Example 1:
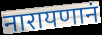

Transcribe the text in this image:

नारायणानं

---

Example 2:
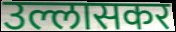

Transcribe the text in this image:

उल्लासकर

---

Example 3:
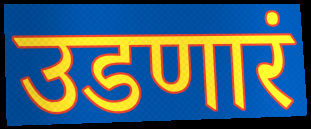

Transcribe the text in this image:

उडणारं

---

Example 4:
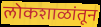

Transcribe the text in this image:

लोकशाळांतून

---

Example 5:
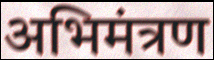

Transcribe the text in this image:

अभिमंत्रण